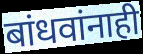
बांधवांनाही